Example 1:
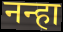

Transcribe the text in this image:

नन्हा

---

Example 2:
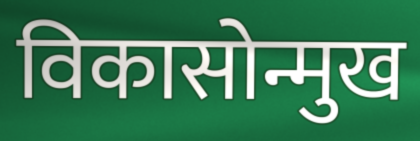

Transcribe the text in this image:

विकासोन्मुख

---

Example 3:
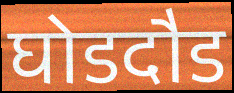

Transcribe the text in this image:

घोडदौड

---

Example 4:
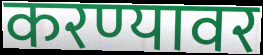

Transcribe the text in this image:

करण्यावर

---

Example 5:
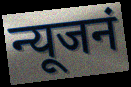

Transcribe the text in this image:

न्यूजनं